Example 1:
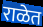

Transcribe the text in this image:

राळेत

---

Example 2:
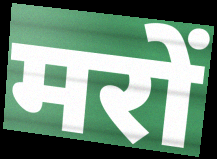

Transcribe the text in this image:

मरों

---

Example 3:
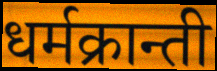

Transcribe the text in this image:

धर्मक्रान्ती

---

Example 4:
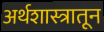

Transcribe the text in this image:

अर्थशास्त्रातून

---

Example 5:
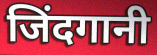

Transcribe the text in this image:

जिंदगानी